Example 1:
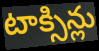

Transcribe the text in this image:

టాక్సిన్లు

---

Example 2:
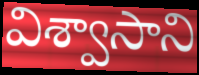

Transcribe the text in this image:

విశ్వాసాని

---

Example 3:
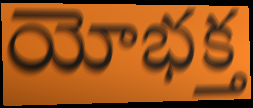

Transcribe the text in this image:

యోభక్త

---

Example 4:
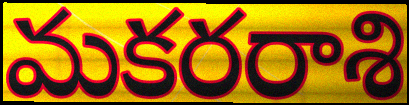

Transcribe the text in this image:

మకరరాశి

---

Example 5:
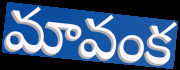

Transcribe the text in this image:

మావంక